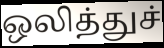
ஒலித்துச்